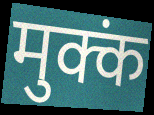
मुक्कं